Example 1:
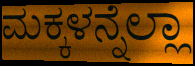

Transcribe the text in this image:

ಮಕ್ಕಳನ್ನೆಲ್ಲಾ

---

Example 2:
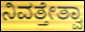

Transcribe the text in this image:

ನಿವತ್ತೇತ್ವಾ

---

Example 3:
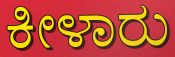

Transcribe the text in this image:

ಕೀಳಾರು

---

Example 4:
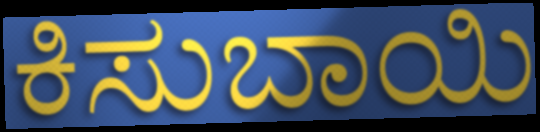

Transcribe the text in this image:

ಕಿಸುಬಾಯಿ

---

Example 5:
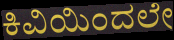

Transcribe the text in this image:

ಕಿವಿಯಿಂದಲೇ